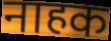
नाहक